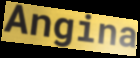
Angina